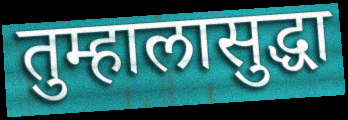
तुम्हालासुद्धा